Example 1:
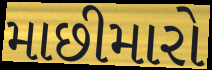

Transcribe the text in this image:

માછીમારો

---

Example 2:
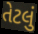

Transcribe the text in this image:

તેટલું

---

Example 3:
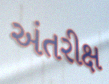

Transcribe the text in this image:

અંતરીક્ષ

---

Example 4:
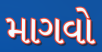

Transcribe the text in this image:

માગવો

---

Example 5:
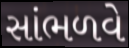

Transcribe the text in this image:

સાંભળવે